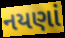
નયણાં